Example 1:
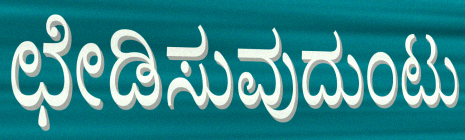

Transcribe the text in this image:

ಛೇಡಿಸುವುದುಂಟು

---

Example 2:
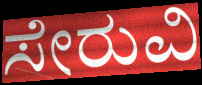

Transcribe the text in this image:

ಸೇರುವಿ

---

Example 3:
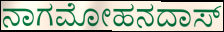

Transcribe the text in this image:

ನಾಗಮೋಹನದಾಸ್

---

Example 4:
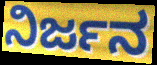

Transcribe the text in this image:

ನಿರ್ಜನ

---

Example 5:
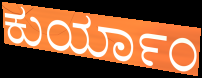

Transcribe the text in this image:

ಕುರ್ಯಾಂ